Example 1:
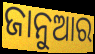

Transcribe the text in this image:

ଜାନୁଆର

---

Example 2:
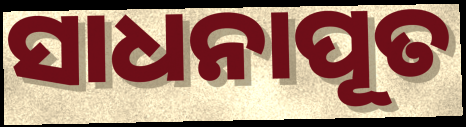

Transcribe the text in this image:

ସାଧନାପୂତ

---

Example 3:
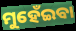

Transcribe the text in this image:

ମୁହେଁଇବା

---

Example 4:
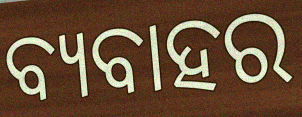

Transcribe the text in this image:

ବ୍ୟବାହର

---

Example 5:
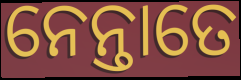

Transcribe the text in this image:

ନେନ୍ତାତେ